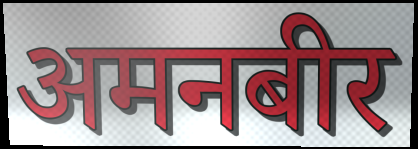
अमनबीर